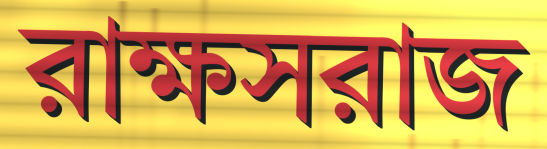
রাক্ষসরাজ